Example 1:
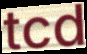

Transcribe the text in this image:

tcd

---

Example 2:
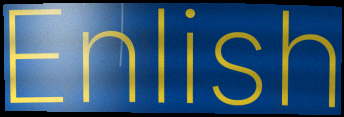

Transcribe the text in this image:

Enlish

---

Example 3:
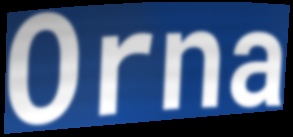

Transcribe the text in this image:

Orna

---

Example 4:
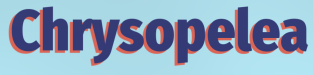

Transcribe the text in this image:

Chrysopelea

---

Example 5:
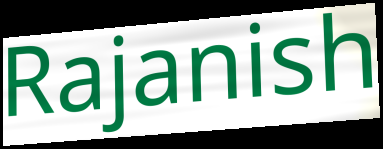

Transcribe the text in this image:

Rajanish